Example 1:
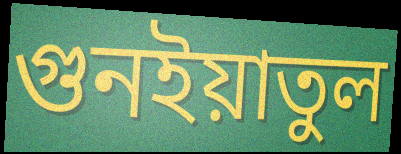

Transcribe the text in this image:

গুনইয়াতুল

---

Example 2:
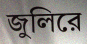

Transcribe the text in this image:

জুলিরে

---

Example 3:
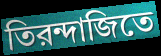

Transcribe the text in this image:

তিরন্দাজিতে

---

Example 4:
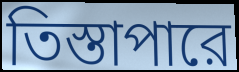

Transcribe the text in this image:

তিস্তাপারে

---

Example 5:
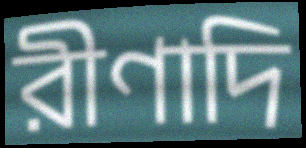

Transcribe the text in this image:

রীণাদি